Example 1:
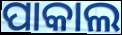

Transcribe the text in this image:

ପାକାଲ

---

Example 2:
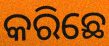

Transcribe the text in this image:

କରିଛେ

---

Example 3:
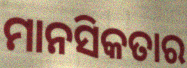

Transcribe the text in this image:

ମାନସିକତାର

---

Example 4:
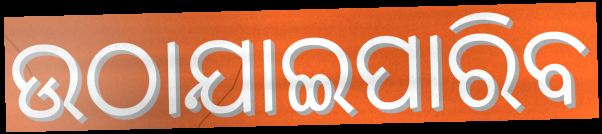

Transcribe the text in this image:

ଉଠାଯାଇପାରିବ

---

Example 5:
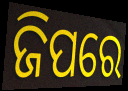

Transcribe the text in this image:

ଜିପରେ